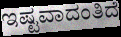
ಇಷ್ಟವಾದಂತಿದೆ